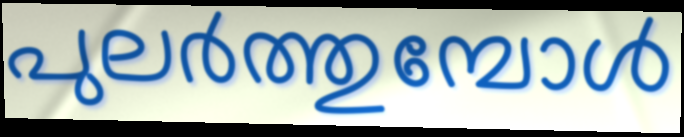
പുലർത്തുമ്പോൾ